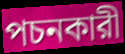
পচনকারী